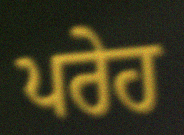
ਪਰੇਹ